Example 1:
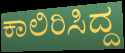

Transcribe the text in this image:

ಕಾಲಿರಿಸಿದ್ದ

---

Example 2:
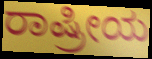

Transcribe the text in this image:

ರಾಷ್ರೀಯ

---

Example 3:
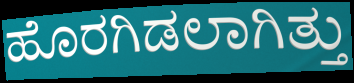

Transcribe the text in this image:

ಹೊರಗಿಡಲಾಗಿತ್ತು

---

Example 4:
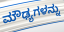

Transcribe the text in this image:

ಮೌಢ್ಯಗಳನ್ನು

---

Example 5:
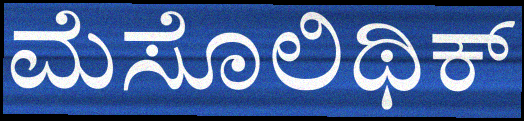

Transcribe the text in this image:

ಮೆಸೊಲಿಥಿಕ್